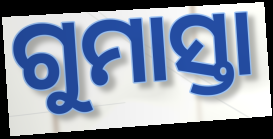
ଗୁମାସ୍ତା